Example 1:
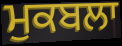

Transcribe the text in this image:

ਮੁਕਬਲਾ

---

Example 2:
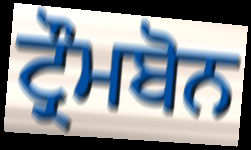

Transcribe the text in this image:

ਟ੍ਰੌਮਬੋਨ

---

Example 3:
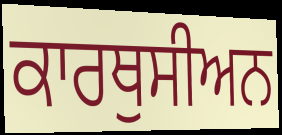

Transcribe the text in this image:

ਕਾਰਥੁਸੀਅਨ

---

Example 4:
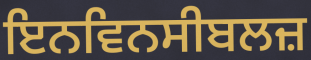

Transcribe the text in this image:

ਇਨਵਿਨਸੀਬਲਜ਼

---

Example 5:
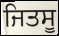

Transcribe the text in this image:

ਜਿਤਸੂ